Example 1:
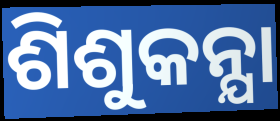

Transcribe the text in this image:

ଶିଶୁକନ୍ଯା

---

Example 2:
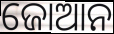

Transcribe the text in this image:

ଜୋଆନ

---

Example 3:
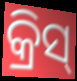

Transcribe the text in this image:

କ୍ରିସ୍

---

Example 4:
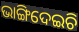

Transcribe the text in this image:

ଭାଙ୍ଗିଦେଇଚି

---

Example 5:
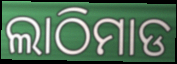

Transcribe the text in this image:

ଲାଠିମାଡ